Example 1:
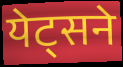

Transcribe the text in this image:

येट्सने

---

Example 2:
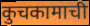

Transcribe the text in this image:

कुचकामाची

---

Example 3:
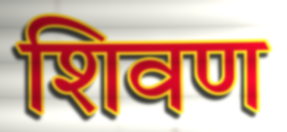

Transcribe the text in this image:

शिवण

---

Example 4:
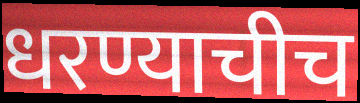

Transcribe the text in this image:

धरण्याचीच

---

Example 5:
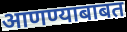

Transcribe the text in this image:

आणण्याबाबत